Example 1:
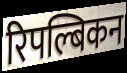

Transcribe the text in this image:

रिपल्बिकन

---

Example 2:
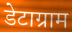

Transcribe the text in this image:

डेटाग्राम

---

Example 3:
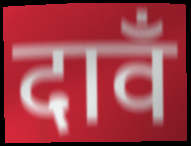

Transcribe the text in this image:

दावँ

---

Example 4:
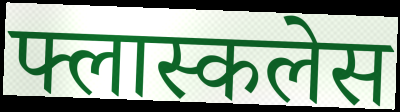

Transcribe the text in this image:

फ्लास्कलेस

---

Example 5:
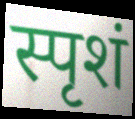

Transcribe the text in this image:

स्पृशं